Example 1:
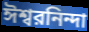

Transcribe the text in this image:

ঈশ্বরনিন্দা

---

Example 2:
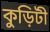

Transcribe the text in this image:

কুড়িটী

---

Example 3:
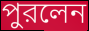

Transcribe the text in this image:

পুরলেন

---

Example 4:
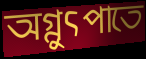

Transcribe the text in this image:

অগ্নুৎপাতে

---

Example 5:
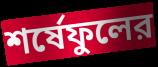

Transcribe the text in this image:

শর্ষেফুলের